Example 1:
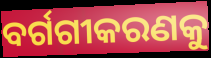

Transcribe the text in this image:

ବର୍ଗଗୀକରଣକୁ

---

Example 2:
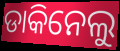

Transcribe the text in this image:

ଡାକିନେଲୁ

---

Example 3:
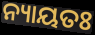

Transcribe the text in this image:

ନ୍ୟାୟତଃ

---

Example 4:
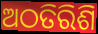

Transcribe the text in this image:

ଅଠତିରିଶି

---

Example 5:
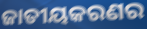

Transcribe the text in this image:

ଜାତୀୟକରଣର